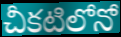
చీకటిలోనో